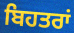
ਬਿਹਤਰਾਂ